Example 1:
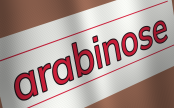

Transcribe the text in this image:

arabinose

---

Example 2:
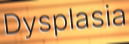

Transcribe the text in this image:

Dysplasia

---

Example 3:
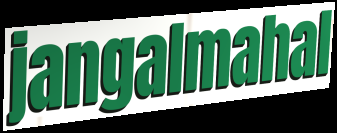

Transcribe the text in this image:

jangalmahal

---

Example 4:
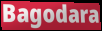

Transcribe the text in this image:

Bagodara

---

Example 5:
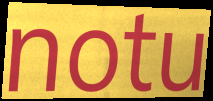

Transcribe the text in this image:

notu